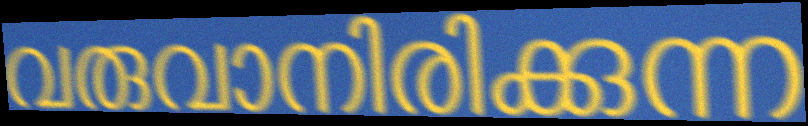
വരുവാനിരിക്കുന്ന